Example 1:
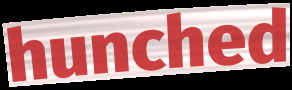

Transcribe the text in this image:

hunched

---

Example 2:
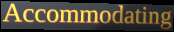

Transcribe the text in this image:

Accommodating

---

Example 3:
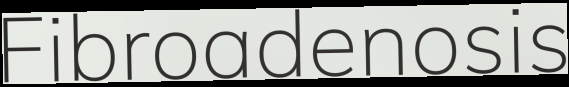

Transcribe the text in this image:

Fibroadenosis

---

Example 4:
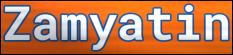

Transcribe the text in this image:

Zamyatin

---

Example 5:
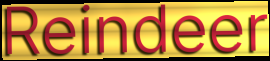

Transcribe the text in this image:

Reindeer